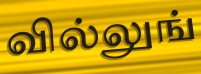
வில்லுங்